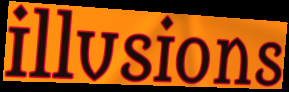
illusions